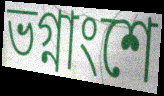
ভগ্নাংশে